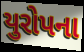
યુરોપના